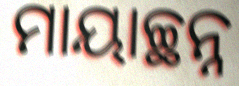
ମାୟାଚ୍ଛନ୍ନ